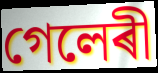
গেলেৰী